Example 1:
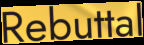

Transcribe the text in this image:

Rebuttal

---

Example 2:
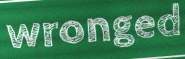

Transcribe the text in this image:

wronged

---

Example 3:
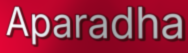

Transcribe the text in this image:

Aparadha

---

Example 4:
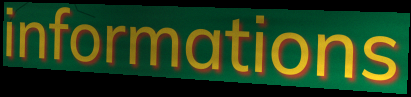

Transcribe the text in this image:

informations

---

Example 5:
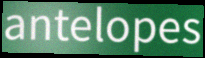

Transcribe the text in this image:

antelopes